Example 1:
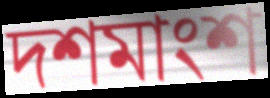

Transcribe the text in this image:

দশমাংশ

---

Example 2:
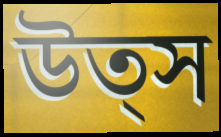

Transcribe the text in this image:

উত্স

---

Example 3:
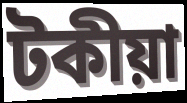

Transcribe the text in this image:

টকীয়া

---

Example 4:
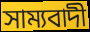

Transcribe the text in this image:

সাম্যবাদী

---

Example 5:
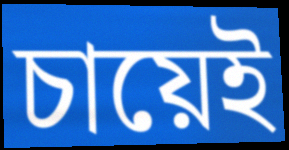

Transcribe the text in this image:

চায়েই